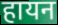
हायन